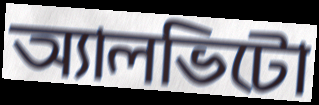
অ্যালভিটো